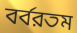
বর্বরতম